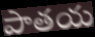
పాతయ